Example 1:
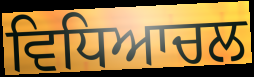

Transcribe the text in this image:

ਵਿਧਿਆਚਲ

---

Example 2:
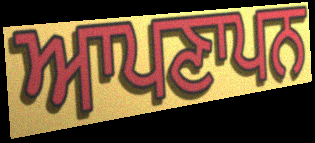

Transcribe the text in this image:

ਆਪਣਾਪਨ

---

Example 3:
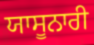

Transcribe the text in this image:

ਯਾਸੂਨਾਰੀ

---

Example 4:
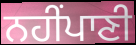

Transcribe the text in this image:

ਨਹੀਂਪਾਣੀ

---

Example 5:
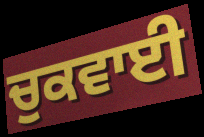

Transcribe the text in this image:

ਚੁਕਵਾਈ